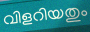
വിളറിയതും